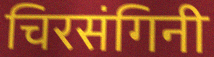
चिरसंगिनी